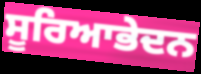
ਸੂਰਿਆਭੇਦਨ